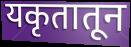
यकृतातून